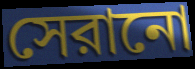
সেরানো